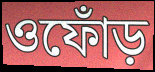
ওফোঁড়